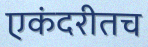
एकंदरीतच